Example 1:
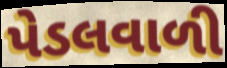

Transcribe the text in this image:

પેડલવાળી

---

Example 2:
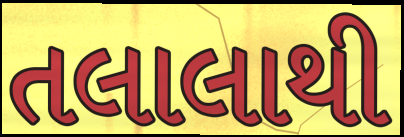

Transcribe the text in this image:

તલાલાથી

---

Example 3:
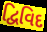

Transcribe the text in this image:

દ્વિવિદ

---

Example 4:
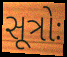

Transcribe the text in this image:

સૂત્રોઃ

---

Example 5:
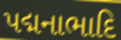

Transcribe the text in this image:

પદ્મનાભાદિ